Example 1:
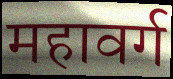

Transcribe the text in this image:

महावर्ग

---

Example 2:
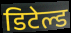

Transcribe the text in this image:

डिटेल्ड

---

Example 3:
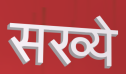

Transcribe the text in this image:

सख्ये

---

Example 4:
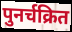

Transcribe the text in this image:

पुनर्चक्रित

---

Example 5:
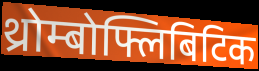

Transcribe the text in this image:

थ्रोम्बोफ्लिबिटिक